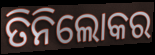
ତିନିଲୋକର